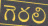
గెరలి